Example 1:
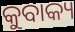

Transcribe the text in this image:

କୁବାକ୍ୟ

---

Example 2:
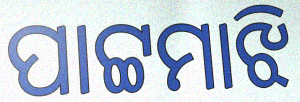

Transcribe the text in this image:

ପାଟ୍ଟମାଝି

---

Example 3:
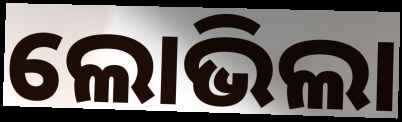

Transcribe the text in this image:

ଲୋଭିଲା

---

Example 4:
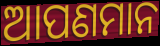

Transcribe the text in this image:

ଆପଣମାନ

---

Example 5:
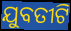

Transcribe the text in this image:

ଯୁବତୀଟି